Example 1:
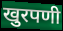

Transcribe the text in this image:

खुरपणी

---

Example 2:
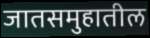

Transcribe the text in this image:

जातसमुहातील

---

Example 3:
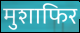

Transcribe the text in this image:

मुशाफिर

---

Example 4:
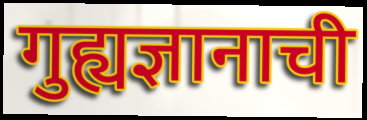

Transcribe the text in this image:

गुह्यज्ञानाची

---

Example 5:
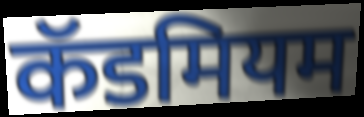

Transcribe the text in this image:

कॅडमियम